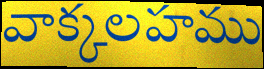
వాక్కలహము